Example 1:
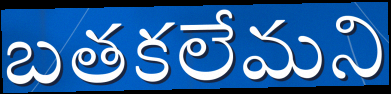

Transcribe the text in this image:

బతకలేమని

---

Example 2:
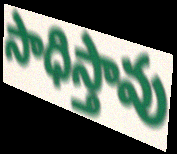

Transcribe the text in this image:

సాధిస్తావు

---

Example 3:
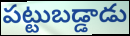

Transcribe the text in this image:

పట్టుబడ్డాడు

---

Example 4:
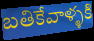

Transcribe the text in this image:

బతికేవాళ్ళకి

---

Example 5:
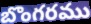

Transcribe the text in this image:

బొంగరము